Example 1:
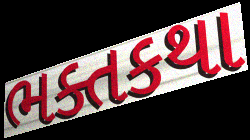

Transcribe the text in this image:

ભક્તકથા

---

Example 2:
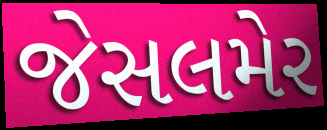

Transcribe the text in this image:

જેસલમેર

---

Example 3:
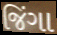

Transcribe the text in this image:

જિંગા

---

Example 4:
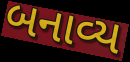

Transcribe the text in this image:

બનાવ્ય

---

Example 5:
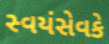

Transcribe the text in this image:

સ્વયંસેવકે